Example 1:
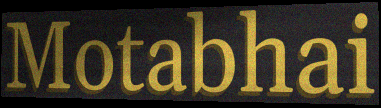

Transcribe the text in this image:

Motabhai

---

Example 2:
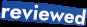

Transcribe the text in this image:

reviewed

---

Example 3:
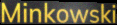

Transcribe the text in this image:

Minkowski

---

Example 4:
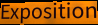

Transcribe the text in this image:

Exposition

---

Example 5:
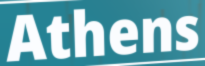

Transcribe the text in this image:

Athens